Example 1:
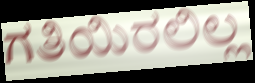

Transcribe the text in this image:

ಗತಿಯಿರಲಿಲ್ಲ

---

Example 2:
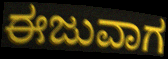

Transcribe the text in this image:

ಈಜುವಾಗ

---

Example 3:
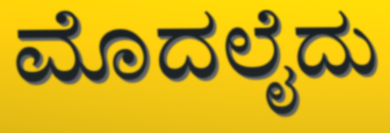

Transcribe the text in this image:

ಮೊದಲೈದು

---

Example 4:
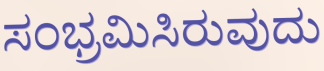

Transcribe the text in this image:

ಸಂಭ್ರಮಿಸಿರುವುದು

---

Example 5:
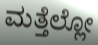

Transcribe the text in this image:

ಮತ್ತೆಲ್ಲೋ